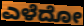
ಎಳೆದೋ